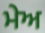
ਮੇਅ